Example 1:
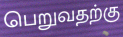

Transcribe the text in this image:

பெறுவதற்கு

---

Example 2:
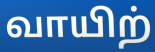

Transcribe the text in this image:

வாயிற்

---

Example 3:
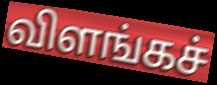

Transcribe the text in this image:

விளங்கச்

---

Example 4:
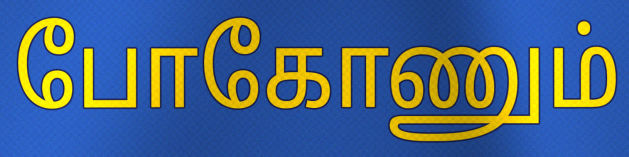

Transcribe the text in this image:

போகோணும்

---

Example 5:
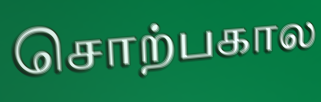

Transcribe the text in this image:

சொற்பகால